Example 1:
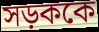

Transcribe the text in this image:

সড়ককে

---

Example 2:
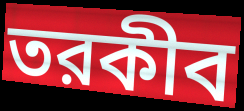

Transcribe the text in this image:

তরকীব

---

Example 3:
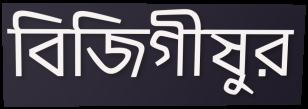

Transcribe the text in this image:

বিজিগীষুর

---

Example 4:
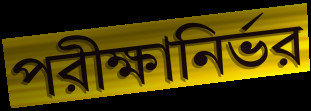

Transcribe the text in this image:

পরীক্ষানির্ভর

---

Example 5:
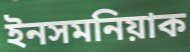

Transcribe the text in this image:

ইনসমনিয়াক